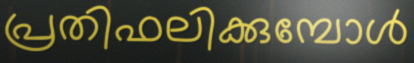
പ്രതിഫലിക്കുമ്പോൾ